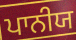
ਪਾਨੀਯ